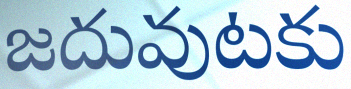
జదువుటకు